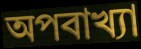
অপবাখ্যা